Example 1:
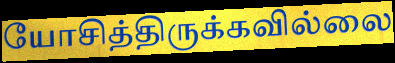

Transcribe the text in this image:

யோசித்திருக்கவில்லை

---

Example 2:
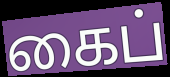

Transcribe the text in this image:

கைப்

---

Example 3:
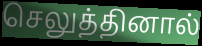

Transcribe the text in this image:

செலுத்தினால்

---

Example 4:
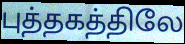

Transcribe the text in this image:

புத்தகத்திலே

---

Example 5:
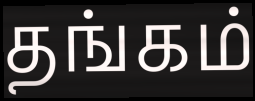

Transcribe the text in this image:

தங்கம்